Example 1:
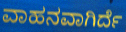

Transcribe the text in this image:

ವಾಹನವಾಗಿರ್ದೆ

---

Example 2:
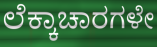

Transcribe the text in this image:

ಲೆಕ್ಕಾಚಾರಗಳೇ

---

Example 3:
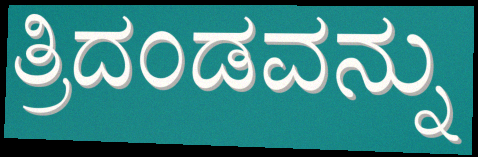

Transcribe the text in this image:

ತ್ರಿದಂಡವನ್ನು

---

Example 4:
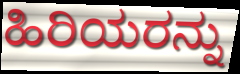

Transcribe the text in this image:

ಹಿರಿಯರನ್ನು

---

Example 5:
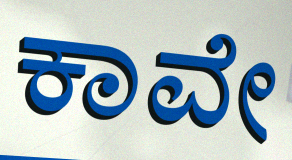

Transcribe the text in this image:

ಕಾವೇ